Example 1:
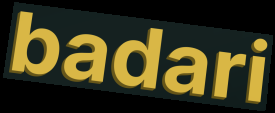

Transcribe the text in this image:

badari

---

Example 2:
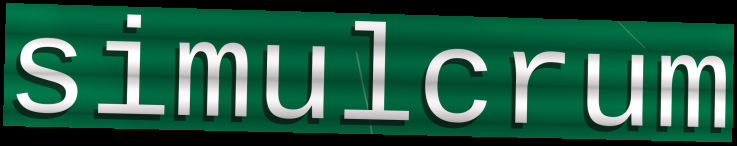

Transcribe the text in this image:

simulcrum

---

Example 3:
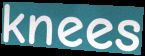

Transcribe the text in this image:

knees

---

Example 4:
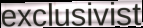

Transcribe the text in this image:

exclusivist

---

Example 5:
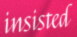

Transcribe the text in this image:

insisted